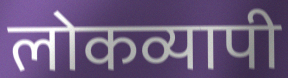
लोकव्यापी